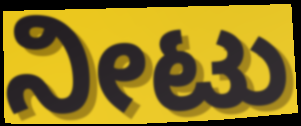
ನೀಟು